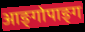
आङ्गोपाङ्ग